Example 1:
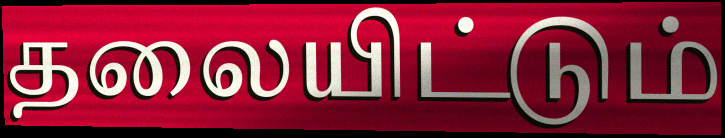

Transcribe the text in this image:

தலையிட்டும்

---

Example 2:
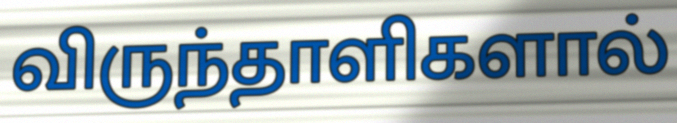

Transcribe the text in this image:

விருந்தாளிகளால்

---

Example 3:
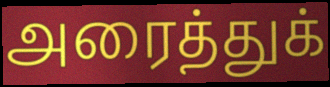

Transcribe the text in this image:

அரைத்துக்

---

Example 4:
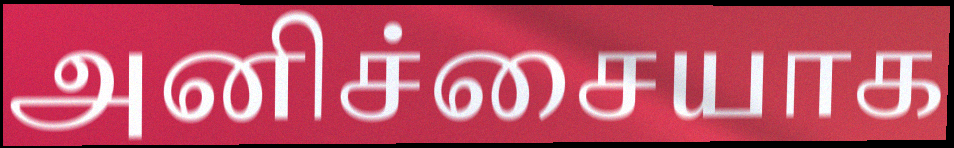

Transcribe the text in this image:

அனிச்சையாக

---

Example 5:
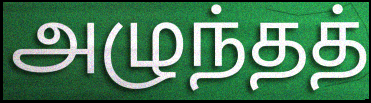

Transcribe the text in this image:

அழுந்தத்